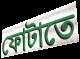
ফোটাতে